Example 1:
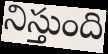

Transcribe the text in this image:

నిస్తుంది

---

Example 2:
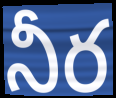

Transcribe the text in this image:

నీర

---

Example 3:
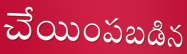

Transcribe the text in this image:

చేయింపబడిన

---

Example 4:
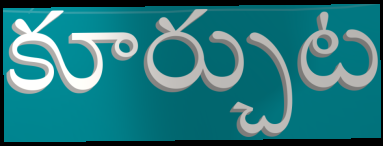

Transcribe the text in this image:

కూర్చుట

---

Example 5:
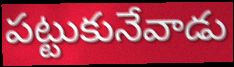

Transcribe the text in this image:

పట్టుకునేవాడు